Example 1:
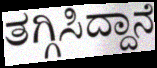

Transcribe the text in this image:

ತಗ್ಗಿಸಿದ್ದಾನೆ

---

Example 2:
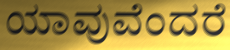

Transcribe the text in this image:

ಯಾವುವೆಂದರೆ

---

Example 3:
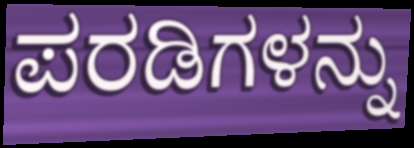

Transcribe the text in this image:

ಪರಡಿಗಳನ್ನು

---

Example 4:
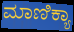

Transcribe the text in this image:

ಮಾಣಿಕ್ಯಾ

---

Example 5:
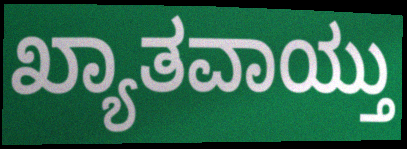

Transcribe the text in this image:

ಖ್ಯಾತವಾಯ್ತು